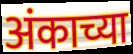
अंकाच्या